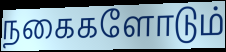
நகைகளோடும்